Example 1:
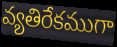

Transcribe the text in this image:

వ్యతిరేకముగా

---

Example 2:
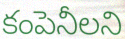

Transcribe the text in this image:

కంపెనీలని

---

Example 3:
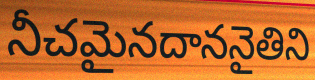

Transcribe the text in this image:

నీచమైనదాననైతిని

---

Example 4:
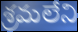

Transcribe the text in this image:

శ్రమలేని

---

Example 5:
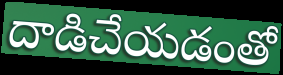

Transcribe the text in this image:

దాడిచేయడంతో